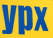
ypx